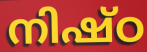
നിഷ്ഠ